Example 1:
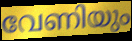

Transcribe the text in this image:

വേണിയും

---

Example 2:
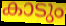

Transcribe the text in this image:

കാടും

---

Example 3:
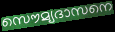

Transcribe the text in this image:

സൌമ്യദാസനെ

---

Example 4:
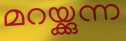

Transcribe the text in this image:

മറയ്ക്കുന്ന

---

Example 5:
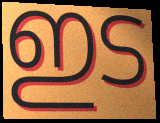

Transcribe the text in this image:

ഇട